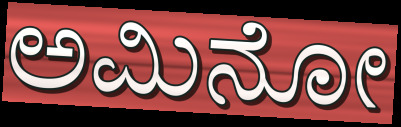
ಅಮಿನೋ